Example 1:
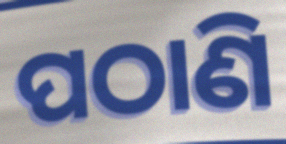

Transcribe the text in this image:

ପଠାଣି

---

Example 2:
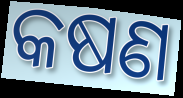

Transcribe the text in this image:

କଷଣ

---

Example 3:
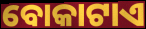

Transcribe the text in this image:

ବୋକାଟାଏ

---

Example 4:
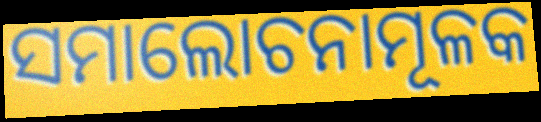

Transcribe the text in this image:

ସମାଲୋଚନାମୂଳକ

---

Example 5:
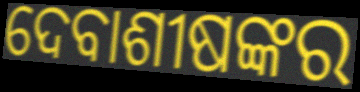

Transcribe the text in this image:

ଦେବାଶୀଷଙ୍କର